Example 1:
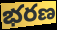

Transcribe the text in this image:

భరణ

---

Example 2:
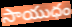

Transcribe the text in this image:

సాయుధం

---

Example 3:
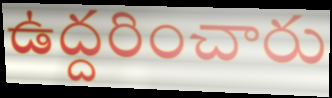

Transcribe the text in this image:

ఉద్దరించారు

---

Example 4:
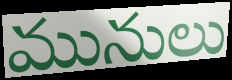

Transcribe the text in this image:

మునులు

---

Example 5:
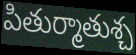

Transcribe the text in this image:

పితుర్మాతుశ్చ